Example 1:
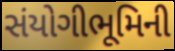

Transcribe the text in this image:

સંયોગીભૂમિની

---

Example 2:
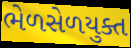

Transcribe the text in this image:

ભેળસેળયુક્ત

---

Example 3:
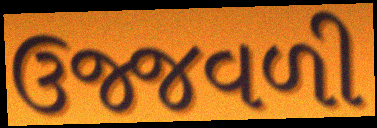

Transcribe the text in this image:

ઉજ્જવળી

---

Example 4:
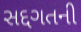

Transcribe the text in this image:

સદ્દગતની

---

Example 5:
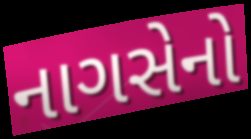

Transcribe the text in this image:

નાગસેનો